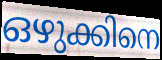
ഒഴുക്കിനെ